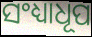
ସଂଧ୍ୟାଧୂପ